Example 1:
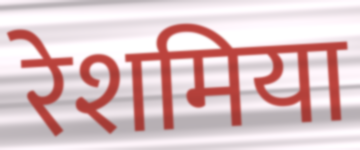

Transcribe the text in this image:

रेशमिया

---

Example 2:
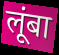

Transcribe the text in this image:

लूंबा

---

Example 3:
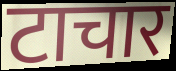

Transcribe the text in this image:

टाचार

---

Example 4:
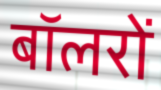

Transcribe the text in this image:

बॉलरों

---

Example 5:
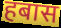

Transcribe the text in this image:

हबास